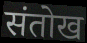
संतोख